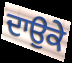
ਦਾਉਕੇ